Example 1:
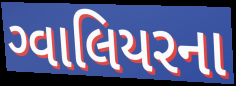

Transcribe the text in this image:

ગ્વાલિયરના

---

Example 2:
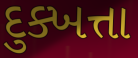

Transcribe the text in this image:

દુક્ખત્તા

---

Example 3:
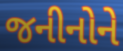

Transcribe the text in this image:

જનીનોને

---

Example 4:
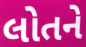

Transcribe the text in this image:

લોતને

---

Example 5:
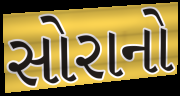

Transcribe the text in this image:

સોરાનો